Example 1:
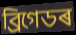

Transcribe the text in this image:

ব্ৰিগেডৰ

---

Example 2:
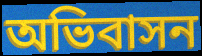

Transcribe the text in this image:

অভিবাসন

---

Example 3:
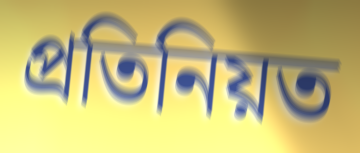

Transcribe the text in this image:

প্ৰতিনিয়ত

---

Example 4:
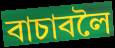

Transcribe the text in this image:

বাচাবলৈ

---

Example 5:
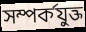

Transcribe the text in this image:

সম্পৰ্কযুক্ত